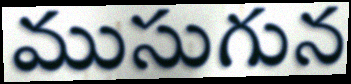
ముసుగున